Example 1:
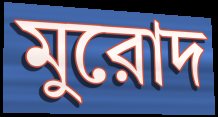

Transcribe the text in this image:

মুরোদ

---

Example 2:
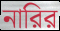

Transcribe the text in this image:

নারির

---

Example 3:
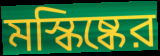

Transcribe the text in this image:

মস্কিষ্কের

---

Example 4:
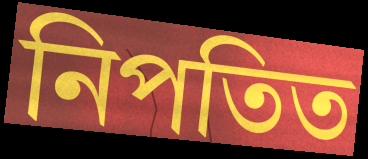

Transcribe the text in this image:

নিপতিত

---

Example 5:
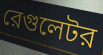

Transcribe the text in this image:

রেগুলেটর